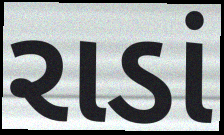
રાડાં